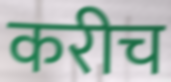
करीच